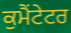
ਕੁਮੈਂਟੇਟਰ